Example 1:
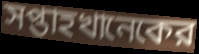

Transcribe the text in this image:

সপ্তাহখানেকের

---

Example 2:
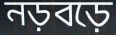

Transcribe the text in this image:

নড়বড়ে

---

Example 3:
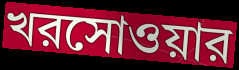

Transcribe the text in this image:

খরসোওয়ার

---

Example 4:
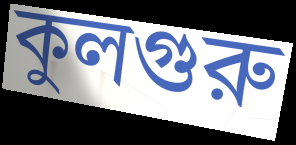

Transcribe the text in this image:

কুলগুরু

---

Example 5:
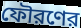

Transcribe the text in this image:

ফৌরণের